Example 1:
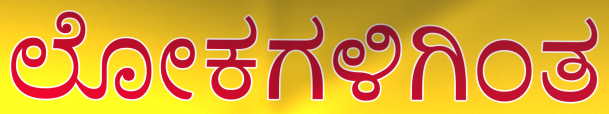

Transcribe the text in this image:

ಲೋಕಗಳಿಗಿಂತ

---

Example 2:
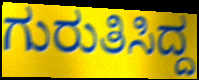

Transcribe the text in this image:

ಗುರುತಿಸಿದ್ದ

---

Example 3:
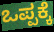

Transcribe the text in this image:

ಒಪ್ಪಕ್ಕೆ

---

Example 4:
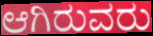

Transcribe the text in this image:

ಆಗಿರುವರು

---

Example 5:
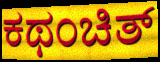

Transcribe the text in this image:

ಕಥಂಚಿತ್